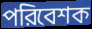
পরিবেশক